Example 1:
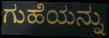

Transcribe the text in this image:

ಗುಹೆಯನ್ನು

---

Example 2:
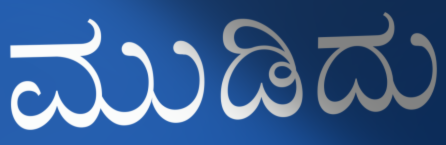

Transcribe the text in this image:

ಮುಡಿದು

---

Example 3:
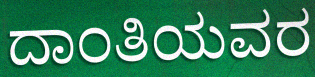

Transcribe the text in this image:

ದಾಂತಿಯವರ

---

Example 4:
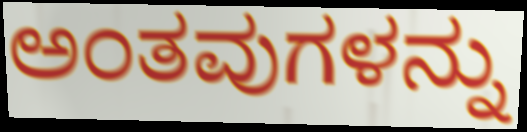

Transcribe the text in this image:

ಅಂತವುಗಳನ್ನು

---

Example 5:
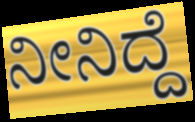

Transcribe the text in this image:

ನೀನಿದ್ದೆ